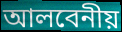
আলবেনীয়